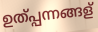
ഉത്പ്പന്നങ്ങള്